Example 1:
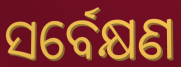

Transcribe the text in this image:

ସର୍ବେକ୍ଷଣ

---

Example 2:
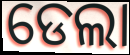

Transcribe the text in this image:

ଡେଲା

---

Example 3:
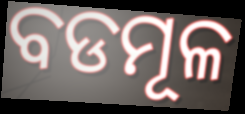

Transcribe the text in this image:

ବଡମୂଳ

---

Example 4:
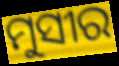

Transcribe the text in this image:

ମୁସୀର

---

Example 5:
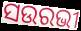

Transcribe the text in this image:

ସଉରଭୀ